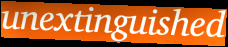
unextinguished